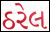
ઠરેલ